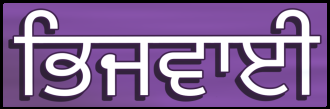
ਭਿਜਵਾਈ